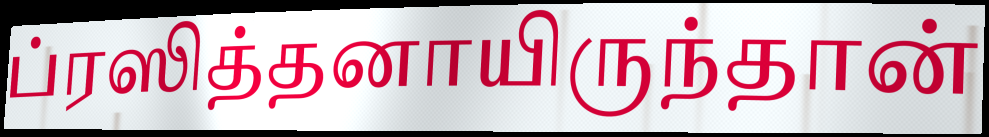
ப்ரஸித்தனாயிருந்தான்